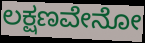
ಲಕ್ಷಣವೇನೋ